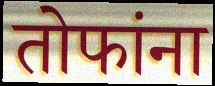
तोफांना